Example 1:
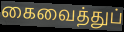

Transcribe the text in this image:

கைவைத்துப்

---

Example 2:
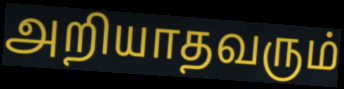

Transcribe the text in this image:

அறியாதவரும்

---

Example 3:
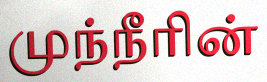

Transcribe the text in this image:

முந்நீரின்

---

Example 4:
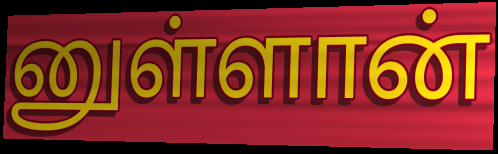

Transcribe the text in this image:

னுள்ளான்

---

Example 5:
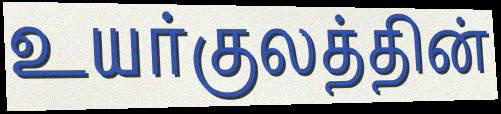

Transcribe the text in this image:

உயர்குலத்தின்